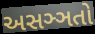
અસઞ્ઞતો